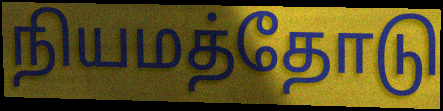
நியமத்தோடு